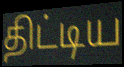
திட்டிய